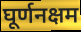
घूर्णनक्षम